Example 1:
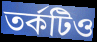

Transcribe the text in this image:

তর্কটিও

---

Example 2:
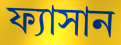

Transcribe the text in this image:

ফ্যাসান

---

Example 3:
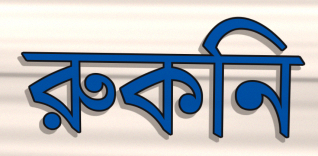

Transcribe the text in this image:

রুকনি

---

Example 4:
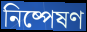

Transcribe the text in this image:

নিষ্পেষণ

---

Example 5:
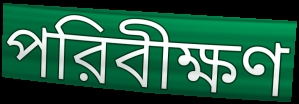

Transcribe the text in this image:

পরিবীক্ষণ